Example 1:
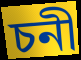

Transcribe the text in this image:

চনী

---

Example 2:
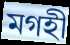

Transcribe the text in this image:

মগহী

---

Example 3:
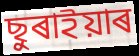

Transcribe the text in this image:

ছুৰাইয়াৰ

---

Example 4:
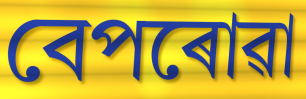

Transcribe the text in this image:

বেপৰোৱা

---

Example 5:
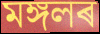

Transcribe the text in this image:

মঙ্গলৰ